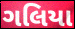
ગલિયા